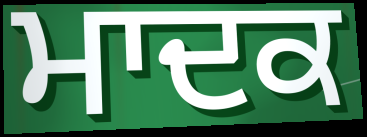
ਮਾਦਕ